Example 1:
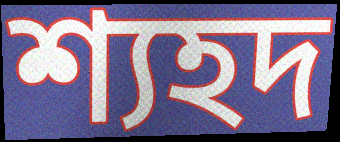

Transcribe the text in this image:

শ্যহদ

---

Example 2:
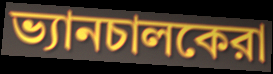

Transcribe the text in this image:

ভ্যানচালকেরা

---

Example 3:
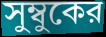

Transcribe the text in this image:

সুম্বুকের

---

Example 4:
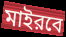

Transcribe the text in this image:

মাইরবে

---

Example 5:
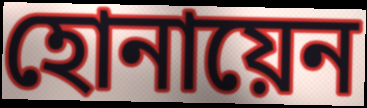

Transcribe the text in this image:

হোনায়েন